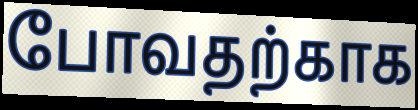
போவதற்காக